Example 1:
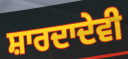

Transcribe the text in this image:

ਸ਼ਾਰਦਾਦੇਵੀ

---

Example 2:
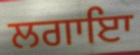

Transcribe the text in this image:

ਲਗਾਇਾ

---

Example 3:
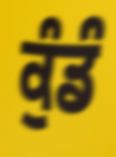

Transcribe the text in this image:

ਕੁੰਡੰ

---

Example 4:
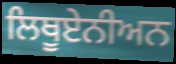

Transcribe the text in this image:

ਲਿਥੂਏਨੀਅਨ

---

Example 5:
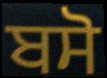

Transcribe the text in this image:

ਬਸੋ